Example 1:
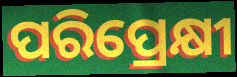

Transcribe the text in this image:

ପରିପ୍ରେକ୍ଷୀ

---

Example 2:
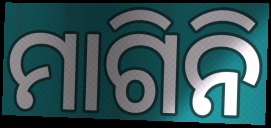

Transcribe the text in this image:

ମାଗିନି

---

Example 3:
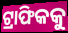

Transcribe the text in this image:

ଟ୍ରାଫିକକୁ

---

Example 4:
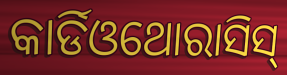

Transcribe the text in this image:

କାର୍ଡିଓଥୋରାସିସ୍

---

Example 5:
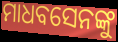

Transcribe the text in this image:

ମାଧବସେନଙ୍କୁ